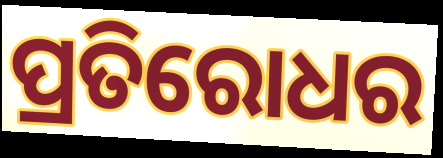
ପ୍ରତିରୋଧର